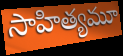
సాహిత్యమూ